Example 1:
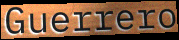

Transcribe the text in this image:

Guerrero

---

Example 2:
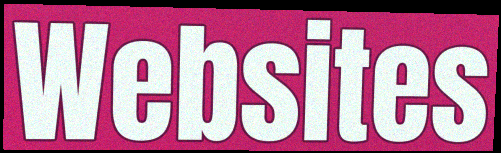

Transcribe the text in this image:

Websites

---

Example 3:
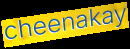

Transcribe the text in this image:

cheenakay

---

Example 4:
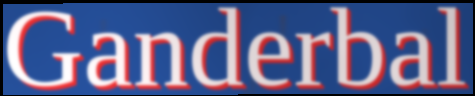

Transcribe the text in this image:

Ganderbal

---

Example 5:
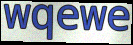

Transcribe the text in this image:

wqewe